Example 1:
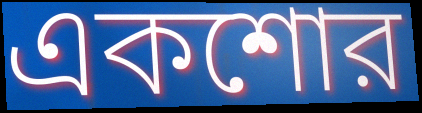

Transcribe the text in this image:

একশোর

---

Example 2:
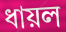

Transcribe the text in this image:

ধায়ল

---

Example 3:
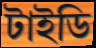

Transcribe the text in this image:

টাইডি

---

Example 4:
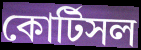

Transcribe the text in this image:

কোর্টিসল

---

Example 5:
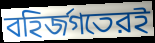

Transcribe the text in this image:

বহির্জগতেরই